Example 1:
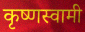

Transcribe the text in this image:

कृष्णस्वामी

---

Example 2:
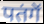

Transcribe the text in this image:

पतंगें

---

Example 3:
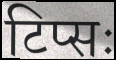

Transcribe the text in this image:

टिप्सः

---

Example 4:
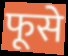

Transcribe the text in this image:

फूसे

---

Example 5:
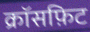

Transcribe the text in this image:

क्रॉसफ़िट